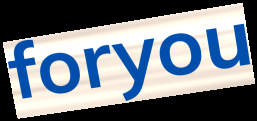
foryou